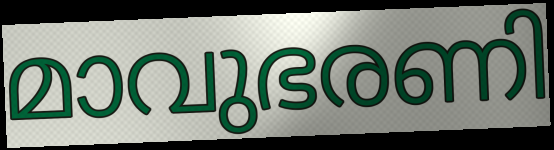
മാവുഭരണി